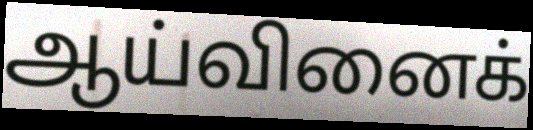
ஆய்வினைக்